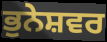
ਭੁਨੇਸ਼ਵਰ